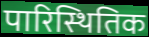
पारिस्थितिक